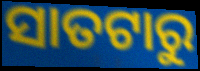
ସାତଟାରୁ